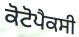
ਕੋਟੋਪੈਕਸੀ